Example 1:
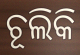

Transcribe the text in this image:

ଚୂଲିକି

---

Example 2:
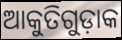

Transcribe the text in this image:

ଆକୁତିଗୁଡ଼ାକ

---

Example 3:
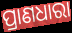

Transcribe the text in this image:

ପ୍ରାଣଧାରା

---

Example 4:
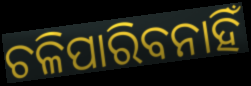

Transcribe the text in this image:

ଚଳିପାରିବନାହିଁ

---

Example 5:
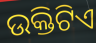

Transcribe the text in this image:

ଉକ୍ତିଟିଏ